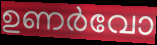
ഉണർവോ